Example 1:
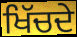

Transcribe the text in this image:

ਖਿੱਚਦੇ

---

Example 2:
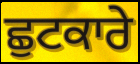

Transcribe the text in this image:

ਛੁਟਕਾਰੇ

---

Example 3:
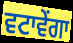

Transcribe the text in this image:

ਵਟਾਵੇਂਗਾ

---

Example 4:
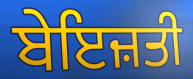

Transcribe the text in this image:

ਬੇਇਜ਼ਤੀ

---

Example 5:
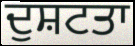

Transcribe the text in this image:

ਦੁਸ਼ਟਤਾ